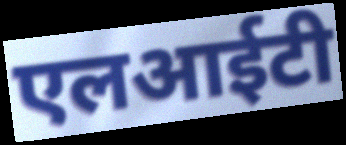
एलआईटी